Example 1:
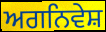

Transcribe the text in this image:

ਅਗਨਿਵੇਸ਼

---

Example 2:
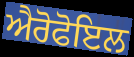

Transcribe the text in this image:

ਐਰੋਫੋਇਲ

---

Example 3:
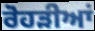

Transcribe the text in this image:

ਰੋਹੜੀਆਂ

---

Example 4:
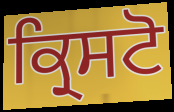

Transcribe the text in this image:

ਕ੍ਰਿਸਟੋ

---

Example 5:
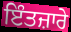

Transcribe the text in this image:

ਇੰਤਜ਼ਾਰੇ